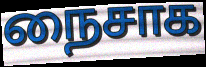
நைசாக